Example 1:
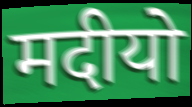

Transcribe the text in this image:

मदीयो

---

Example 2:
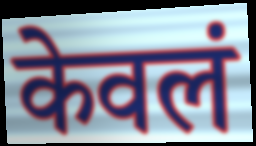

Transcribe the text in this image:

केवलं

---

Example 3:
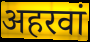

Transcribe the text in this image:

अहरवां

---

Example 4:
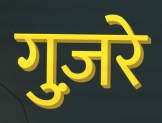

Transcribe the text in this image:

गुज़रे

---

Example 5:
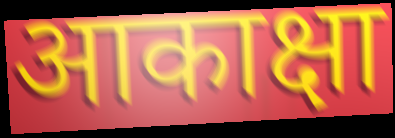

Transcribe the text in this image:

आकाक्षा